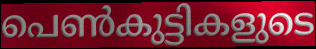
പെൺകുട്ടികളുടെ